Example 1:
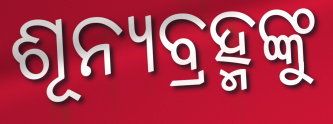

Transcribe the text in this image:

ଶୂନ୍ୟବ୍ରହ୍ମଙ୍କୁ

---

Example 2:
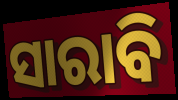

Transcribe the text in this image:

ସାରାବି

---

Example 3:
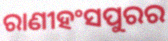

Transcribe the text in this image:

ରାଣୀହଂସପୁରର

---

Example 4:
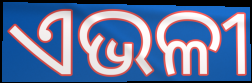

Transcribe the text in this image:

ଏଭଳୀ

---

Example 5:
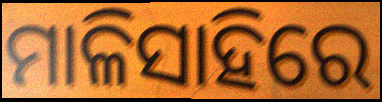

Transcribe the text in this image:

ମାଳିସାହିରେ